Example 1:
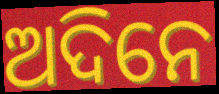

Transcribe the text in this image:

ଅଦିନେ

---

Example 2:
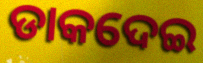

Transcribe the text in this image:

ଡାକଦେଇ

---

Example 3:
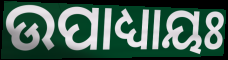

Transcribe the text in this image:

ଉପାଧ୍ୟାୟଃ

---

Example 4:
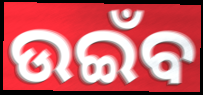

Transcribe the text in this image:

ଉଇଁବ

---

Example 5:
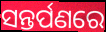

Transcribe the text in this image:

ସନ୍ତର୍ପଣରେ